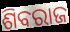
ଶିବରାଜ